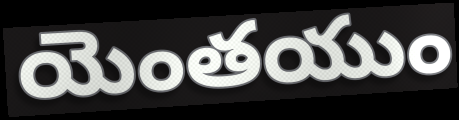
యెంతయుం